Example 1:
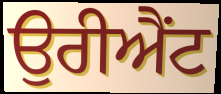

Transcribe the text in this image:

ਉਰੀਐਂਟ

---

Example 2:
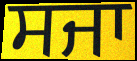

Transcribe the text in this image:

ਸਜਾ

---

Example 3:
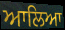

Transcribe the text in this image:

ਆਲਿਆ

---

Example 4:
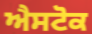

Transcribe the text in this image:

ਐਸਟੋਕ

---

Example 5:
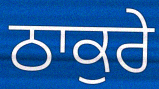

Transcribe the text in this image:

ਠਾਕੁਰੇ